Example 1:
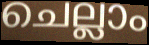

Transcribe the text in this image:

ചെല്ലാം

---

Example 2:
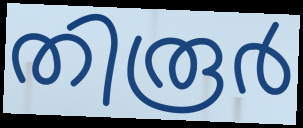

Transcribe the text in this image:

തിരൂർ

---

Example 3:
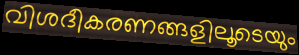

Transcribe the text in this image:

വിശദീകരണങ്ങളിലൂടെയും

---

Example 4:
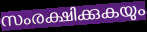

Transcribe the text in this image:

സംരക്ഷിക്കുകയും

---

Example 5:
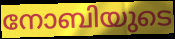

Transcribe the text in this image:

നോബിയുടെ